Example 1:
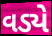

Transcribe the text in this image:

વડ્યે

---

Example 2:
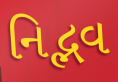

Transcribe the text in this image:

નિદ્ભવ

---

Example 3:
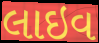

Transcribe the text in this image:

લાઇવ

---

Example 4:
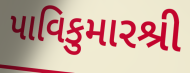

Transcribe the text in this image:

પાવિકુમારશ્રી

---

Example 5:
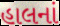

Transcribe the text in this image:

હાલનાં